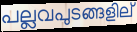
പല്ലവപുടങ്ങളില്